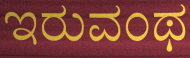
ಇರುವಂಥ